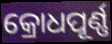
କ୍ରୋଧପୂର୍ଣ୍ଣ